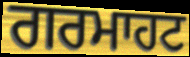
ਗਰਮਾਹਟ